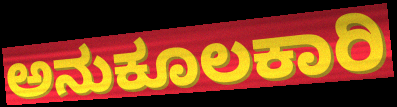
ಅನುಕೂಲಕಾರಿ